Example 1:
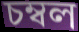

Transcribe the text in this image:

চম্বল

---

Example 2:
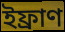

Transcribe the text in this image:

ইফ্ৰাণ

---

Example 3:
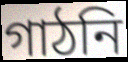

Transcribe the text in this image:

গাঠনি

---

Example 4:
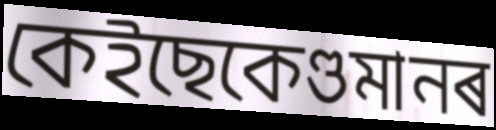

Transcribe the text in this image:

কেইছেকেণ্ডমানৰ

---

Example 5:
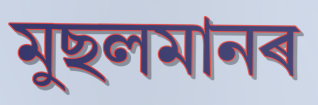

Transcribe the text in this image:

মুছলমানৰ